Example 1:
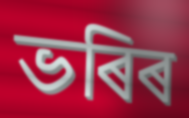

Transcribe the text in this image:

ভৰিৰ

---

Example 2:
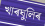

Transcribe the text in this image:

খাৰঘুলিৰ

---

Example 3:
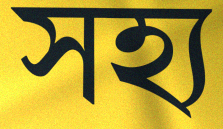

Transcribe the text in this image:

সহ্য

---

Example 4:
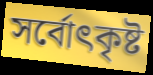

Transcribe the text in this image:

সৰ্বোৎকৃষ্ট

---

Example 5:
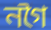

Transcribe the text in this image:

নগৈ